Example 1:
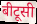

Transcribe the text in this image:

बीटूसी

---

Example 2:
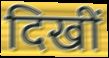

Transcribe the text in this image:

दिखीं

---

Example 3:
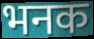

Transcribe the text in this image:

भनक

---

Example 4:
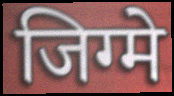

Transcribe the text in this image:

जिग्मे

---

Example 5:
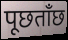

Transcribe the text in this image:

पूछताँछ